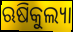
ଋଷିକୁଲ୍ୟା